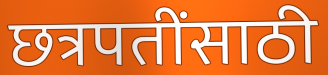
छत्रपतींसाठी